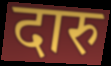
दारु